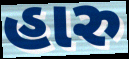
હારુ